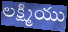
లక్ష్మియు